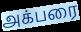
அக்பரை